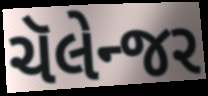
ચૅલેન્જર